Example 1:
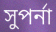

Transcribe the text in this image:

সুপর্না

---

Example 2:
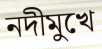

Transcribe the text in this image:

নদীমুখে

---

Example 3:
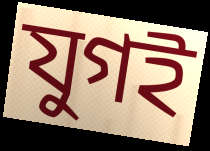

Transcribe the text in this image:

যুগই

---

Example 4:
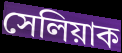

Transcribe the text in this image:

সেলিয়াক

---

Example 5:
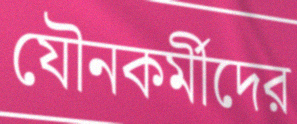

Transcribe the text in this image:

যৌনকর্মীদের